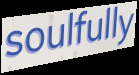
soulfully